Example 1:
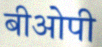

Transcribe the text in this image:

बीओपी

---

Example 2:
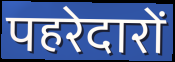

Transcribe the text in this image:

पहरेदारों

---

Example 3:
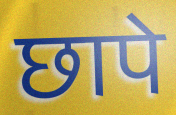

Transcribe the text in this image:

छापे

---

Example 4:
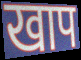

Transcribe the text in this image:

खाप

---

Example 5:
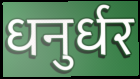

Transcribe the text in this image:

धनुर्धर